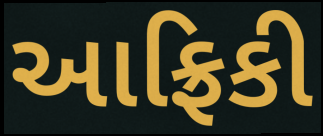
આફ્રિકી